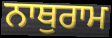
ਨਾਥੁਰਾਮ